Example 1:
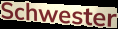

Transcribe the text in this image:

Schwester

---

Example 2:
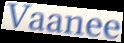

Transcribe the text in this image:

Vaanee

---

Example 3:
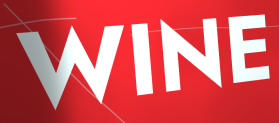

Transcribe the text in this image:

WINE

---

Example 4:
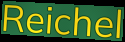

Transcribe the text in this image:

Reichel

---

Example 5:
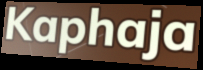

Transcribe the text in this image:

Kaphaja